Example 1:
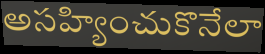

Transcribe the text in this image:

అసహ్యించుకొనేలా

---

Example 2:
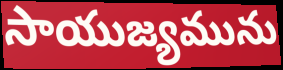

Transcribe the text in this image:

సాయుజ్యమును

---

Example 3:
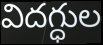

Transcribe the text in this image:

విదగ్ధుల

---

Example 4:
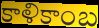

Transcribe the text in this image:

కాళికాంబ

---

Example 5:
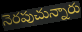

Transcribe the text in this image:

నెరపుచున్నారు